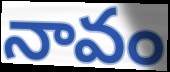
నావం